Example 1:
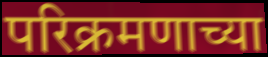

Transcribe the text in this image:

परिक्रमणाच्या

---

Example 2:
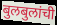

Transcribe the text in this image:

बुलबुलांची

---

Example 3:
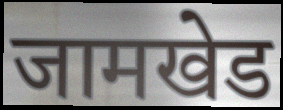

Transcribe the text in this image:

जामखेड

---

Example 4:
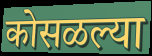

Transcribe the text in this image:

कोसळल्या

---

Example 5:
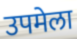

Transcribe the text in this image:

उपमेला